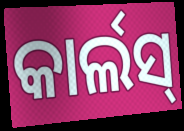
କାର୍ଲସ୍